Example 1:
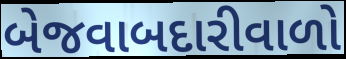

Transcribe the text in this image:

બેજવાબદારીવાળો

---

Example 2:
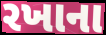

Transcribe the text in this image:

રખાના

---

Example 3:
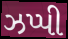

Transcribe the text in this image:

ઝપ્પી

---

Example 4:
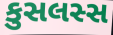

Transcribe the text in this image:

કુસલસ્સ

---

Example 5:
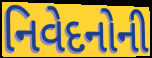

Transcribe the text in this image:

નિવેદનોની